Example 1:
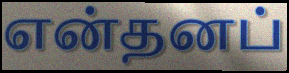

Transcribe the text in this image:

என்தனப்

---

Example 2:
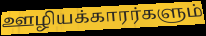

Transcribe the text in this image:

ஊழியக்காரர்களும்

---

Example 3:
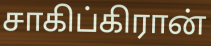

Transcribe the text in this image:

சாகிப்கிரான்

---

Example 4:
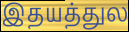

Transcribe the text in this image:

இதயத்துல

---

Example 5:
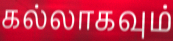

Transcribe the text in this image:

கல்லாகவும்